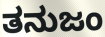
ತನುಜಂ